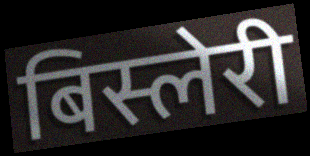
बिस्लेरी